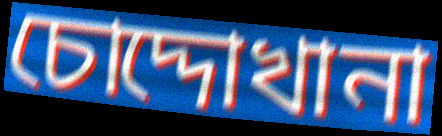
চোদ্দোখানা